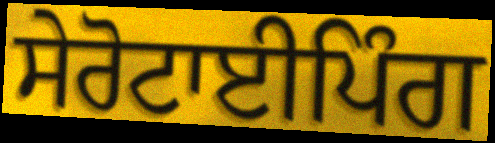
ਸੇਰੋਟਾਈਪਿੰਗ